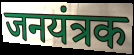
जनयंत्रक